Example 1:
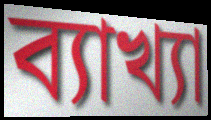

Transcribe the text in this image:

ব্যাখ্যা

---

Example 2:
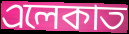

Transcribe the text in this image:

এলেকাত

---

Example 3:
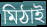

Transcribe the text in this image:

মিঠাই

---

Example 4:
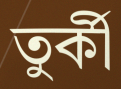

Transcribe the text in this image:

তুৰ্কী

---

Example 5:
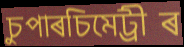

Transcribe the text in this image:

চুপাৰচিমেট্ৰীৰ